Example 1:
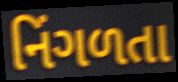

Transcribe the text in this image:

નિંગળતા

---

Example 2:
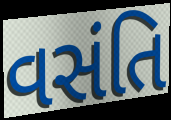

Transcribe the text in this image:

વસંતિ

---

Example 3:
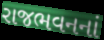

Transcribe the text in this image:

રાજભવનનાં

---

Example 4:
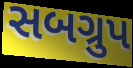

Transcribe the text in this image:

સબગ્રુપ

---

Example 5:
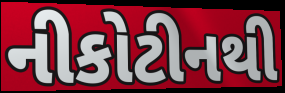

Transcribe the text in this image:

નીકોટીનથી